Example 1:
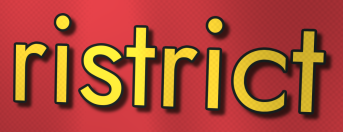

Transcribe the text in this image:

ristrict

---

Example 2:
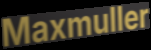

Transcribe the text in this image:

Maxmuller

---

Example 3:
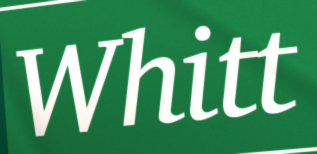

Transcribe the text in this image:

Whitt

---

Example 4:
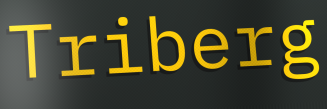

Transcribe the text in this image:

Triberg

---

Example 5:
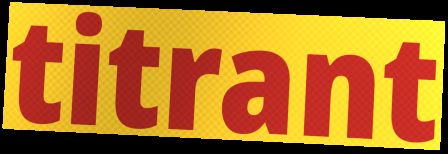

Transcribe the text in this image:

titrant